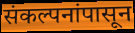
संकल्पनांपासून